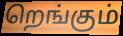
றெங்கும்